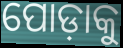
ପୋଡ଼ାକୁ